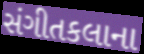
સંગીતકલાના